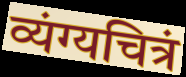
व्यंग्यचित्रं